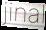
jinal